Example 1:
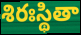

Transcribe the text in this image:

శిరఃస్థితా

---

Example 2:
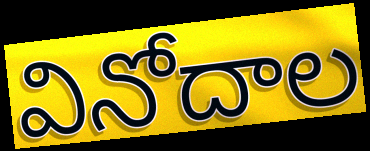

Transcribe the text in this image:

వినోదాల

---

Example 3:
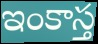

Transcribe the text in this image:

ఇంకాస్త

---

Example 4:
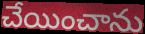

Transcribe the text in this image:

చేయించాను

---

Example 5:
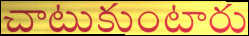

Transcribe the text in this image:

చాటుకుంటారు